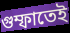
গুম্ফাতেই